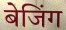
बेजिंग